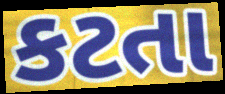
કટતા